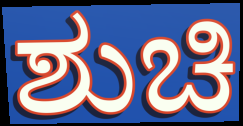
ಶುಚಿ